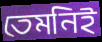
তেমনিই